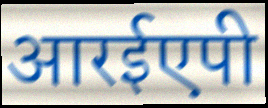
आरईएपी